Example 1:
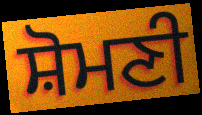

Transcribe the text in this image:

ਸ਼ੋਮਣੀ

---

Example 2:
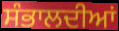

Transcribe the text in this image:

ਸੰਭਾਲਦੀਆਂ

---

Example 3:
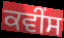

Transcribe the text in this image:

ਕਵੀਂਸ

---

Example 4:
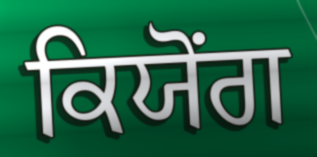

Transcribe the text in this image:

ਕਿਯੋਂਗ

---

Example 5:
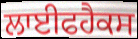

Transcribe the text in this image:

ਲਾਈਫਹੈਕਸ